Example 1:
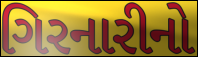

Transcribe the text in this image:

ગિરનારીનો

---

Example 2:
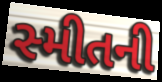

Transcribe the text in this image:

સ્મીતની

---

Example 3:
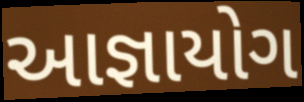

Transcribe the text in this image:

આજ્ઞાયોગ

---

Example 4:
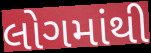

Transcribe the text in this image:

લોગમાંથી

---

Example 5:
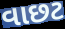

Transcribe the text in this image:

વાછટ